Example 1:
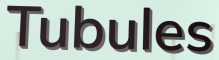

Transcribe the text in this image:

Tubules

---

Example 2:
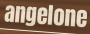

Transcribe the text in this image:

angelone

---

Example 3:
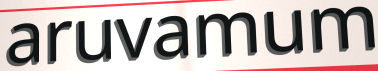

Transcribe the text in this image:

aruvamum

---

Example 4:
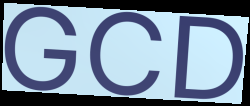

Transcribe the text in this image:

GCD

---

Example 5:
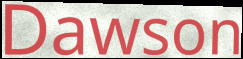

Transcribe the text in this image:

Dawson